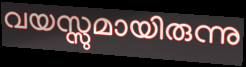
വയസ്സുമായിരുന്നു